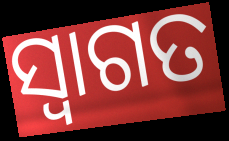
ସ୍ବାଗତ